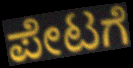
ಪೇಟಗೆ